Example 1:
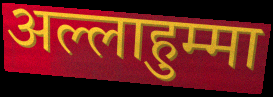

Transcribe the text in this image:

अल्लाहुम्मा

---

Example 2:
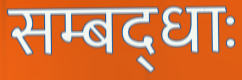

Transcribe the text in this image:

सम्बद्धाः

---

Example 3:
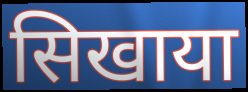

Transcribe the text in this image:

सिखाया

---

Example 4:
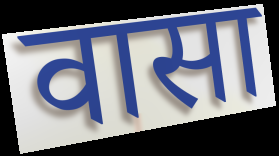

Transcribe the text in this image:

वासा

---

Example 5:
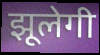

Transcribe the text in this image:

झूलेगी